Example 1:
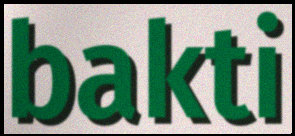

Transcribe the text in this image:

bakti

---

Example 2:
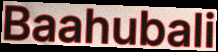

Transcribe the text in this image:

Baahubali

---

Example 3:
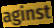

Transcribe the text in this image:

aginst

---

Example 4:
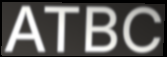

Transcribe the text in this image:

ATBC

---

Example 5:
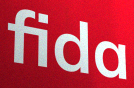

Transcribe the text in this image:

fida